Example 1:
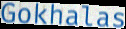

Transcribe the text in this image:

Gokhalas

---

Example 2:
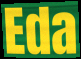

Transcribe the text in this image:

Eda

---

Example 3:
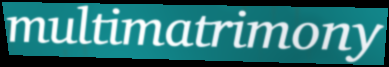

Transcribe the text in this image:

multimatrimony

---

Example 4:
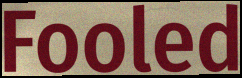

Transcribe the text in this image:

Fooled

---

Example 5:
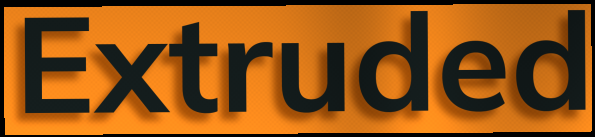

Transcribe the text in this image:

Extruded